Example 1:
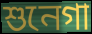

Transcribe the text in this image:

শুনেগা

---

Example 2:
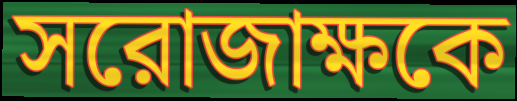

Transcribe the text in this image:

সরোজাক্ষকে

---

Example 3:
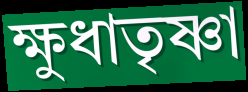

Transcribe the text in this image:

ক্ষুধাতৃষ্ণা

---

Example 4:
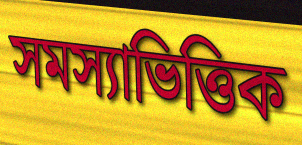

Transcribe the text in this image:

সমস্যাভিত্তিক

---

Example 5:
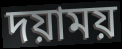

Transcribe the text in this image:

দয়াময়